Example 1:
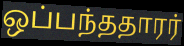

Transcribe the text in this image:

ஒப்பந்ததாரர்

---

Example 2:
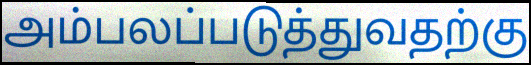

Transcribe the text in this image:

அம்பலப்படுத்துவதற்கு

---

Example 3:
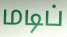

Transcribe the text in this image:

மடிப்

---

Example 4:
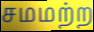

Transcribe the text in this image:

சமமற்ற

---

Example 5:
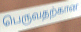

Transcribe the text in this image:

பெருவதற்கான